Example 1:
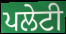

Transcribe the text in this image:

ਪਲੇਟੀ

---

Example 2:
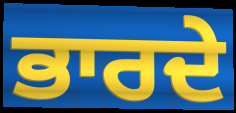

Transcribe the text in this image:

ਭਾਰਦੇ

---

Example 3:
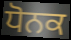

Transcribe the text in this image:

ਧੋਨਕ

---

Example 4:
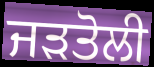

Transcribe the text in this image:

ਜੜਤੋਲੀ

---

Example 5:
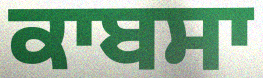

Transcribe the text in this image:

ਕਾਬਸਾ